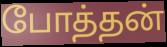
போத்தன்